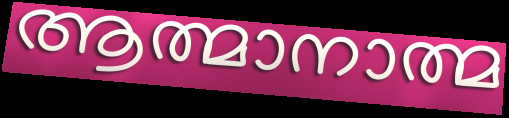
ആത്മാനാത്മ